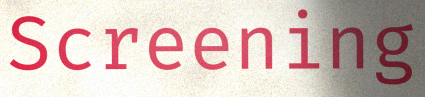
Screening